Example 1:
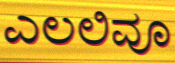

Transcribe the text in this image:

ಎಲಲಿವೂ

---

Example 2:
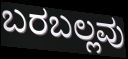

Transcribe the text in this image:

ಬರಬಲ್ಲವು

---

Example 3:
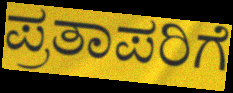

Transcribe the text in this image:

ಪ್ರತಾಪರಿಗೆ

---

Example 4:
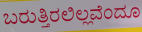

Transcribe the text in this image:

ಬರುತ್ತಿರಲಿಲ್ಲವೆಂದೂ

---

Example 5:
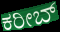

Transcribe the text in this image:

ಕರೀಬ್